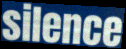
silence